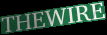
THEWIRE